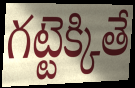
గట్టెక్కితే